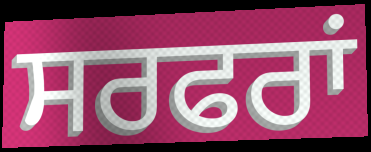
ਸਰਫਰਾਂ